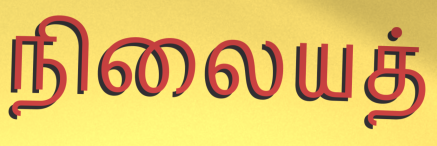
நிலையத்